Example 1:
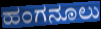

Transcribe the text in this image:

ಹಂಗನೂಲು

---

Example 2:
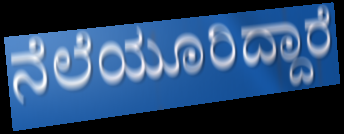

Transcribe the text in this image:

ನೆಲೆಯೂರಿದ್ದಾರೆ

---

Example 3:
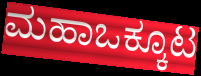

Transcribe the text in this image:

ಮಹಾಒಕ್ಕೂಟ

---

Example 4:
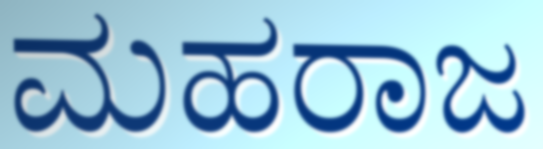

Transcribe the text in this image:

ಮಹರಾಜ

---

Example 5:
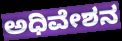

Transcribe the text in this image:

ಅಧಿವೇಶನ